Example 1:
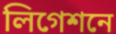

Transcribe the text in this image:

লিগেশনে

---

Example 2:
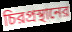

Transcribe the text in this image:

চিরপ্রস্থানের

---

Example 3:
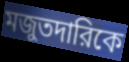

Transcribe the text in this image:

মজুতদারিকে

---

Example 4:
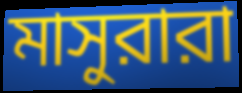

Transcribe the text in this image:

মাসুরারা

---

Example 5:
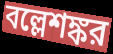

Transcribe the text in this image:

বল্লেশঙ্কর